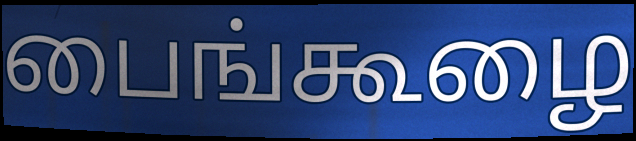
பைங்கூழை